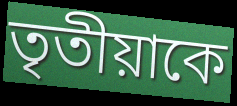
তৃতীয়াকে